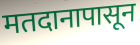
मतदानापासून